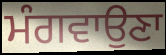
ਮੰਗਵਾਉਣਾ